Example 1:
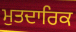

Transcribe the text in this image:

ਮੁਤਦਾਰਿਕ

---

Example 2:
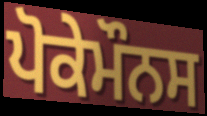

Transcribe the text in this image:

ਪੋਕੇਮੌਨਸ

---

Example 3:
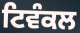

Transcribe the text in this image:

ਟਿਵੰਕਲ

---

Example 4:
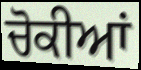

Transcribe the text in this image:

ਚੋਕੀਆਂ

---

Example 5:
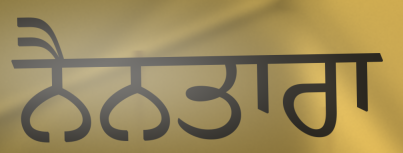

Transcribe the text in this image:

ਨੈਨਤਾਰਾ